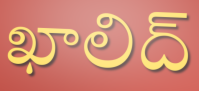
ఖాలిద్